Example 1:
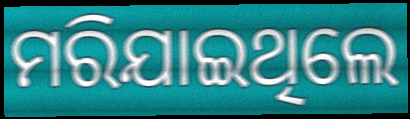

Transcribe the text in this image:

ମରିଯାଇଥିଲେ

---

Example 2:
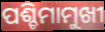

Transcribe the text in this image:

ପଶ୍ଚିମାମୁଖୀ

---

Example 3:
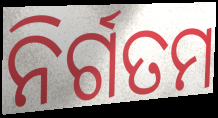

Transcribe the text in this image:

ନିର୍ଗତମ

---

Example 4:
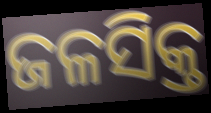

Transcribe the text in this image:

ଜଳସିକ୍ତ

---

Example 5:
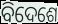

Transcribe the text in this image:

ବିଦେଶେ